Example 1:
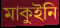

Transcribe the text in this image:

মাকুইনি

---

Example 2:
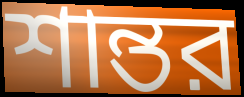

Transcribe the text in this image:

শান্তর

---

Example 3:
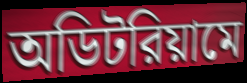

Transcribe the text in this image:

অডিটরিয়ামে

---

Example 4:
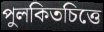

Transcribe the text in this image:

পুলকিতচিত্তে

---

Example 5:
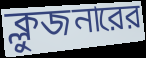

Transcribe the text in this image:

ক্লুজনারের